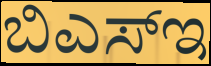
ಬಿಎಸ್ಇ